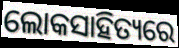
ଲୋକସାହିତ୍ୟରେ